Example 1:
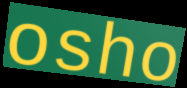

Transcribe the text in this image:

osho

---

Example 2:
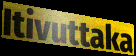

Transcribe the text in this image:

Itivuttaka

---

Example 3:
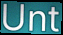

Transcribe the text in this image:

Unt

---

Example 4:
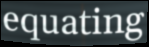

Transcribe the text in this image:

equating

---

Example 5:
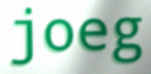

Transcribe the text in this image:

joeg